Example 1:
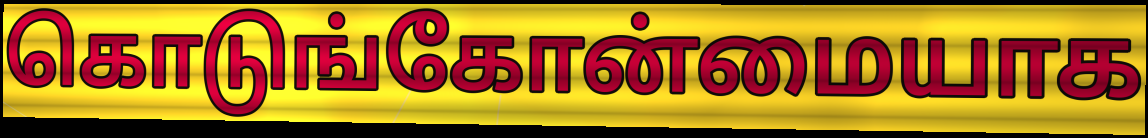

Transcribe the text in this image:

கொடுங்கோன்மையாக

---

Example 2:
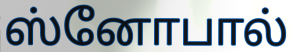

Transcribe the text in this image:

ஸ்னோபால்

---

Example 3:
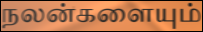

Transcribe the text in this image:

நலன்களையும்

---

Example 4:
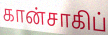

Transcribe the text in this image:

கான்சாகிப்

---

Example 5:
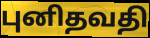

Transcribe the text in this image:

புனிதவதி